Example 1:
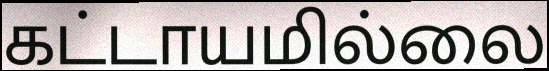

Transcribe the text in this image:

கட்டாயமில்லை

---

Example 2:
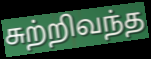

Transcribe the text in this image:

சுற்றிவந்த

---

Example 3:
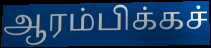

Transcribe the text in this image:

ஆரம்பிக்கச்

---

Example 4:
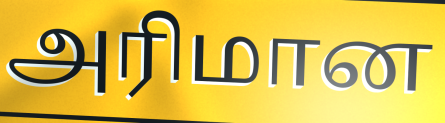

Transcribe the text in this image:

அரிமான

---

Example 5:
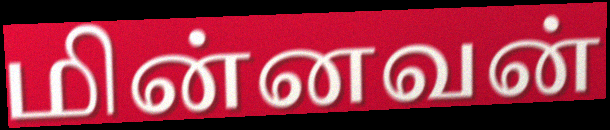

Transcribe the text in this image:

மின்னவன்